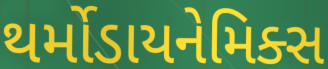
થર્મોડાયનેમિક્સ